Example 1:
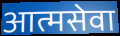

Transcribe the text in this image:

आत्मसेवा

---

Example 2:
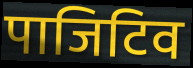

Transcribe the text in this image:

पाजिटिव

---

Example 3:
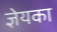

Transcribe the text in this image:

ज्ञेयका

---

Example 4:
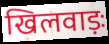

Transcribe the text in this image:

खिलवाड़ः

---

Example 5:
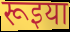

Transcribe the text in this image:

रूइया